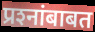
प्रश्‍नांबाबत